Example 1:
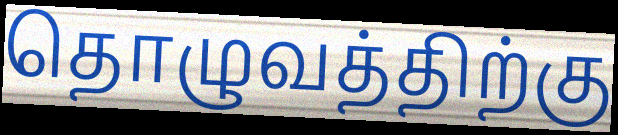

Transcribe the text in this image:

தொழுவத்திற்கு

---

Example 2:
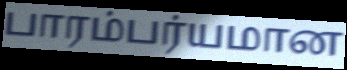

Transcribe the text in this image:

பாரம்பர்யமான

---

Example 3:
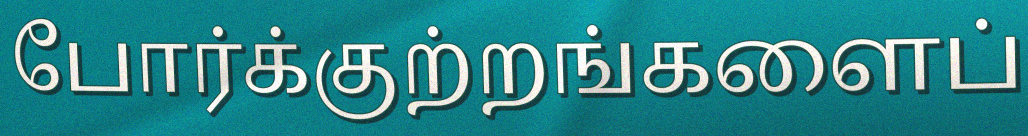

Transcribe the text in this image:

போர்க்குற்றங்களைப்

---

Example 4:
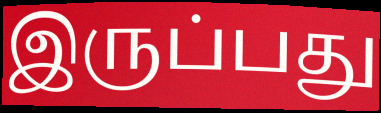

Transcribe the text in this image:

இருப்பது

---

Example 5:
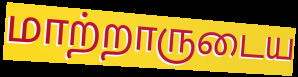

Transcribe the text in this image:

மாற்றாருடைய